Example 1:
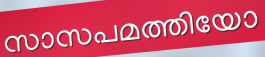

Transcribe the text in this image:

സാസപമത്തിയോ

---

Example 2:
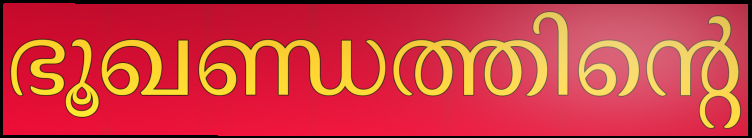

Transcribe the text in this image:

ഭൂഖണ്ഡത്തിന്റെ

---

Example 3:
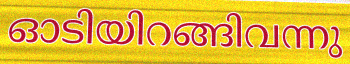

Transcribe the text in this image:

ഓടിയിറങ്ങിവന്നു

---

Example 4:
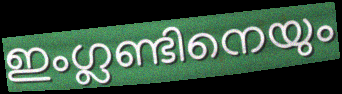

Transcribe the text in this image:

ഇംഗ്ലണ്ടിനെയും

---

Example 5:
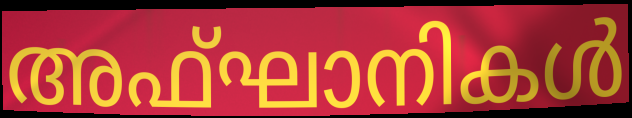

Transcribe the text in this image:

അഫ്ഘാനികൾ